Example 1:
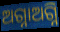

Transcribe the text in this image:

ଅଗ୍ନାଅଗ୍ନି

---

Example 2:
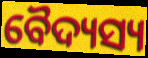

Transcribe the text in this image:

ବୈଦ୍ୟସ୍ୟ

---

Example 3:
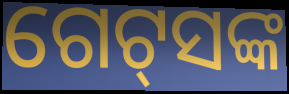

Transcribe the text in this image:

ଗେଟ୍‌ସଙ୍କ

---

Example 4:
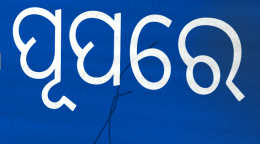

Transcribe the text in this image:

ପୂପରେ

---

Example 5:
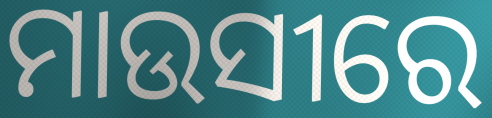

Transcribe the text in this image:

ମାଉସୀରେ